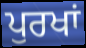
ਪੁਰਖਾਂ